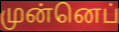
முன்னெப்